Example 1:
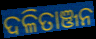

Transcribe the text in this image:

ଦଳିତାଞ୍ଜନ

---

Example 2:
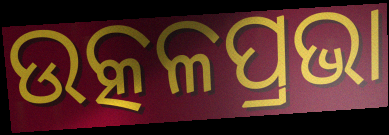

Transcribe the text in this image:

ଉତ୍କଳପ୍ରଭା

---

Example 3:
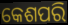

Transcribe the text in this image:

କେଶପରି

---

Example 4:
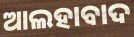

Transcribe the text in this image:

ଆଲହାବାଦ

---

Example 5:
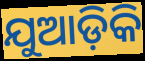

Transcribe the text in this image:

ଯୁଆଡ଼ିକି